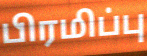
பிரமிப்பு